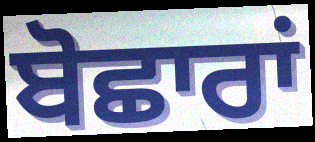
ਬੋਛਾਰਾਂ